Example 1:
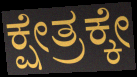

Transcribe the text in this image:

ಕ್ಷೇತ್ರಕ್ಕೇ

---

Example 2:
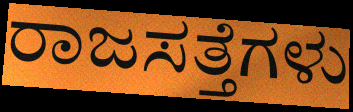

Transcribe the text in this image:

ರಾಜಸತ್ತೆಗಳು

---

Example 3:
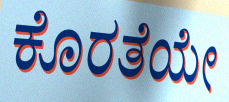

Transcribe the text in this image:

ಕೊರತೆಯೇ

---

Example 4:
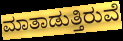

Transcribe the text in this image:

ಮಾತಾಡುತ್ತಿರುವೆ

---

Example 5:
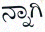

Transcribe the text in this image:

ನ್ನಾಗಿ